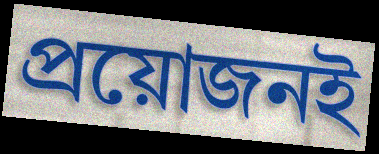
প্রয়োজনই